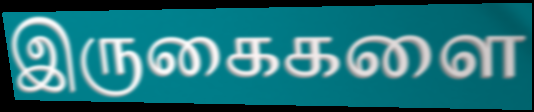
இருகைகளை